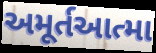
અમૂર્તઆત્મા